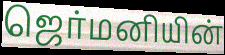
ஜெர்மனியின்